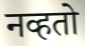
नव्हतो